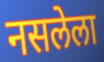
नसलेला